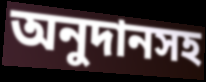
অনুদানসহ